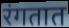
रंगतात